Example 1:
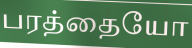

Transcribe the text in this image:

பரத்தையோ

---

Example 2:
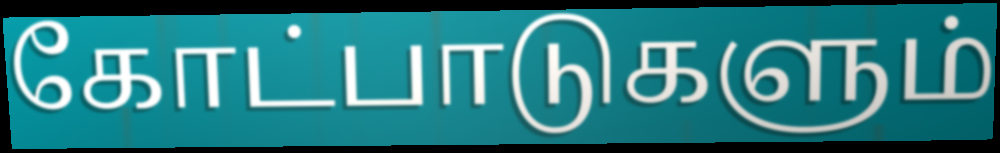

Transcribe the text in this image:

கோட்பாடுகளும்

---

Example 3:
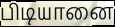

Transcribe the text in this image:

பிடியானை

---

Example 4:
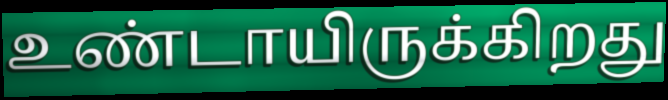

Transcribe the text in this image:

உண்டாயிருக்கிறது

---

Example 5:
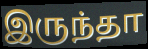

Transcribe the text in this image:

இருந்தா